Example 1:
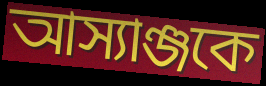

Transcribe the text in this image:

আস্যাঞ্জকে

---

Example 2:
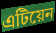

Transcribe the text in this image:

এটিয়েন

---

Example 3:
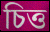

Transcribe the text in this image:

চিত্ত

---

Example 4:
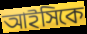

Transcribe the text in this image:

আইসিকে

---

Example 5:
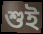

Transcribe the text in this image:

শুই